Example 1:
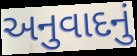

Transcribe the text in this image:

અનુવાદનું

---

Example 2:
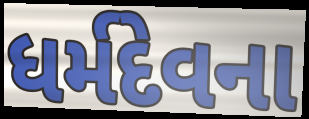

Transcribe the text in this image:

ધર્મદેવના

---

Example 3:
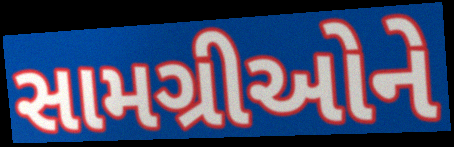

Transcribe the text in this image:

સામગ્રીઓને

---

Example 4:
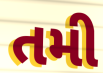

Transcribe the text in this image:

તમી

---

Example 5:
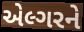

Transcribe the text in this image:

એલ્ગરને